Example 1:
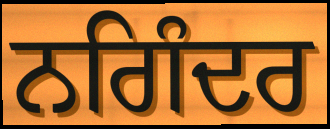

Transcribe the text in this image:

ਨਗਿੰਦਰ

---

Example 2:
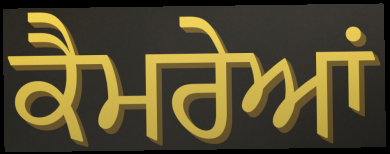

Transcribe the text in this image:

ਕੈਮਰੇਆਂ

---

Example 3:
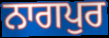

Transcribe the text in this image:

ਨਾਗਪੁਰ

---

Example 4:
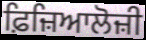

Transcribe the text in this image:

ਫ਼ਿਜ਼ਿਆਲੋਜ਼ੀ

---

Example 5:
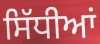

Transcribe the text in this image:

ਸਿੱਧੀਆਂ